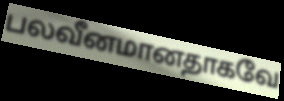
பலவீனமானதாகவே